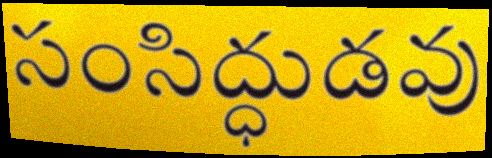
సంసిద్ధుడవు